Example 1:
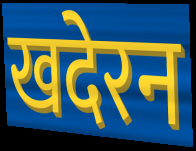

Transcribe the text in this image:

खदेरन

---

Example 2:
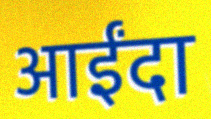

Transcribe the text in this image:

आईंदा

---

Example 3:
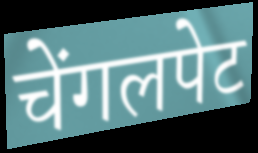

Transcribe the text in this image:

चेंगलपेट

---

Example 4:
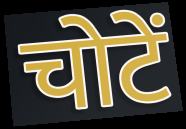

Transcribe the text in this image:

चोटें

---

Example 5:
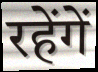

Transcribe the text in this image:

रहेंगें